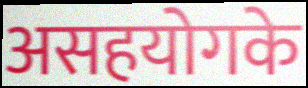
असहयोगके